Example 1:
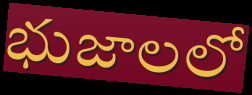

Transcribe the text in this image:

భుజాలలో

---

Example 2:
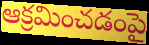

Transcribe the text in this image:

ఆక్రమించడంపై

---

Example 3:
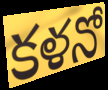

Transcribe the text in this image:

కళనో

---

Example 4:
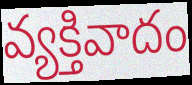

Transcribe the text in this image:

వ్యక్తివాదం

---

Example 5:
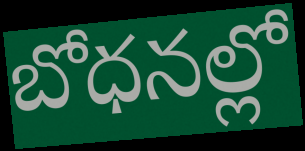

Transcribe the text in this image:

బోధనల్లో